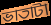
ভাতাটা